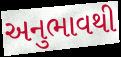
અનુભાવથી